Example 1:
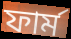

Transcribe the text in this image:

ফার্ম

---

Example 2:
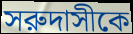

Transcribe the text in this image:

সরুদাসীকে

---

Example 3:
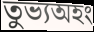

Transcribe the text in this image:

তুভ্যঅহং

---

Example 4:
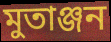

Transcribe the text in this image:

মুতাঞ্জন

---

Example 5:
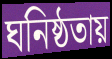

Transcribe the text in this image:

ঘনিষ্ঠতায়